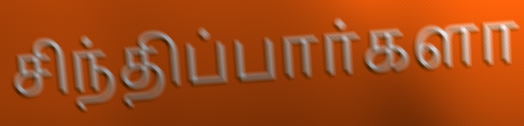
சிந்திப்பார்களா